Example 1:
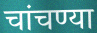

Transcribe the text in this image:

चांचण्या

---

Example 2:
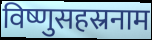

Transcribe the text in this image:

विष्णुसहस्रनाम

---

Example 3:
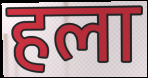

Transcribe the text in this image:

हला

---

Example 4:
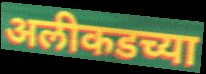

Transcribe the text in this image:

अलीकडच्या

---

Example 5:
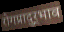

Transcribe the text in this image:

रोगप्रादुर्भाव